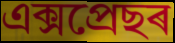
এক্সপ্ৰেছৰ